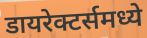
डायरेक्टर्समध्ये